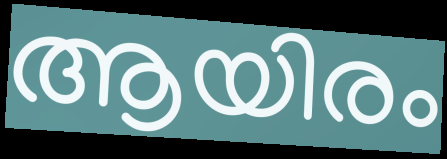
ആയിരം